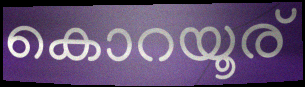
കൊറയൂര്